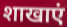
शाखाएं